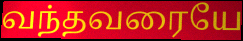
வந்தவரையே